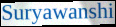
Suryawanshi